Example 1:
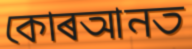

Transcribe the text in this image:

কোৰআনত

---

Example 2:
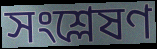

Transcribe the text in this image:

সংশ্লেষণ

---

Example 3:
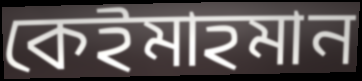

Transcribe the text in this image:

কেইমাহমান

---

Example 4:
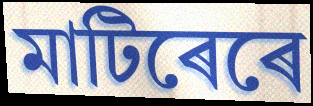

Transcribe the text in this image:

মাটিৰেৰে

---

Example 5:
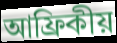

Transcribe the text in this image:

আফ্ৰিকীয়